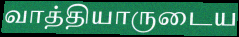
வாத்தியாருடைய